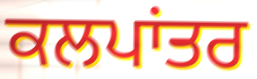
ਕਲਪਾਂਤਰ